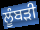
ਲੂੰਬੜੀ